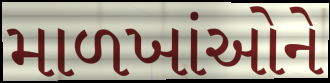
માળખાંઓને